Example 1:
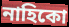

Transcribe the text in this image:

নাহিকো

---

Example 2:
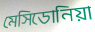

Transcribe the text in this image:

মেসিডোনিয়া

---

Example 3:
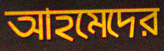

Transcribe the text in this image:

আহমেদের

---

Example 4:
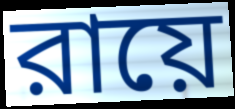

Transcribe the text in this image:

রায়ে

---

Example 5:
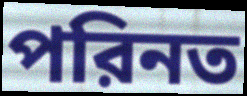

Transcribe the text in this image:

পরিনত